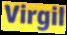
Virgil